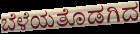
ಬೆಳೆಯತೊಡಗಿದ